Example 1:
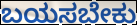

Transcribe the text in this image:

ಬಯಸಬೇಕು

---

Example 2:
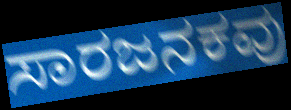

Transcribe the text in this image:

ಸಾರಜನಕವು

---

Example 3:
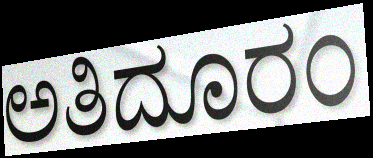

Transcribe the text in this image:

ಅತಿದೂರಂ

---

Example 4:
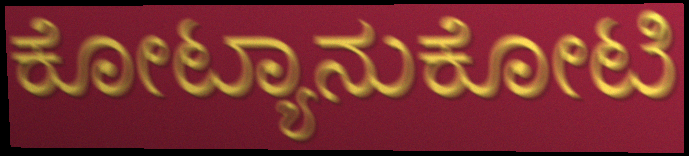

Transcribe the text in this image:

ಕೋಟ್ಯಾನುಕೋಟಿ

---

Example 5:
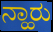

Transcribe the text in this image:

ನ್ಹಾರು